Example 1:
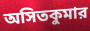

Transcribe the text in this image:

অসিতকুমার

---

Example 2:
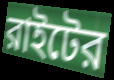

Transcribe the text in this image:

রাইটের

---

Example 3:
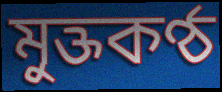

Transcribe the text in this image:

মুক্তকণ্ঠ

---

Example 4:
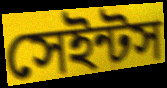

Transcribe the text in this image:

সেইন্টস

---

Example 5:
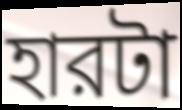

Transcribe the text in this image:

হারটা